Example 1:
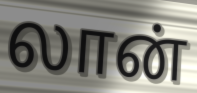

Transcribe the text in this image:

லான்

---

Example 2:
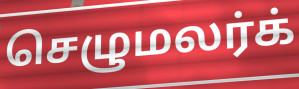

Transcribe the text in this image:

செழுமலர்க்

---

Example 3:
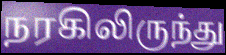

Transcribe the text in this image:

நரகிலிருந்து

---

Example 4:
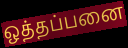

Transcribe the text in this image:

ஒத்தப்பனை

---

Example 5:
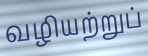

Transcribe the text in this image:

வழியற்றுப்